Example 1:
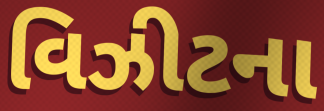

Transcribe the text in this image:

વિઝીટના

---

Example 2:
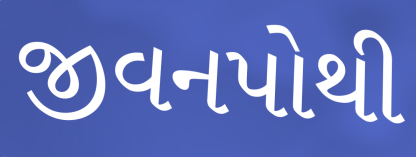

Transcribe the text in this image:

જીવનપોથી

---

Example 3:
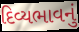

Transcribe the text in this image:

દિવ્યભાવનું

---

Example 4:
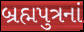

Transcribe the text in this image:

બ્રહ્મપુત્રનાં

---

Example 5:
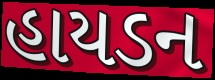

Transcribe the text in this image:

હાયડન